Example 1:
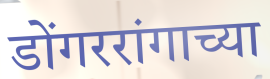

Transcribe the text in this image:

डोंगररांगाच्या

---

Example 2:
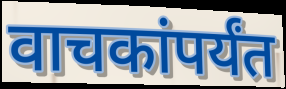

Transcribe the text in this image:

वाचकांपर्यंत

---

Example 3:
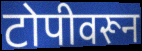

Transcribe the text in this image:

टोपीवरून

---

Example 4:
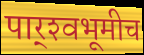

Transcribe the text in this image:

पार्श्वभूमीच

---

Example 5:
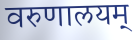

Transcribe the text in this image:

वरुणालयम्